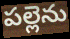
పల్లెను